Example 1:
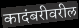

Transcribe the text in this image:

कादंबरीवरील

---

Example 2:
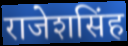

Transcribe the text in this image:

राजेशसिंह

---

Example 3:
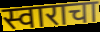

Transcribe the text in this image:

स्वाराचा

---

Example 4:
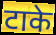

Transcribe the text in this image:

टाके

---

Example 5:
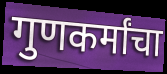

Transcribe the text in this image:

गुणकर्मांचा